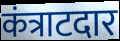
कंत्राटदार